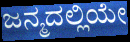
ಜನ್ಮದಲ್ಲಿಯೇ